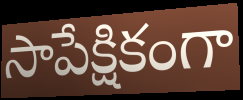
సాపేక్షికంగా